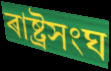
ৰাষ্ট্ৰসংঘ